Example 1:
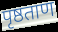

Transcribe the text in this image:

पृष्ठताण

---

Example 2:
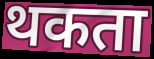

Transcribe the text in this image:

थकता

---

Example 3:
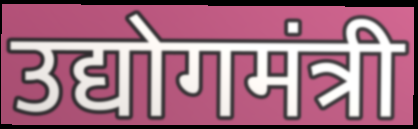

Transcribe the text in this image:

उद्योगमंत्री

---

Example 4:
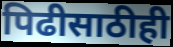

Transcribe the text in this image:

पिढीसाठीही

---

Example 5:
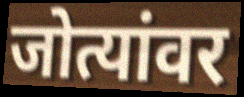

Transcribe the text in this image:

जोत्यांवर